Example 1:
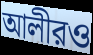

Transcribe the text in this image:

আলীরও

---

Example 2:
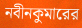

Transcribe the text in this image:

নবীনকুমারের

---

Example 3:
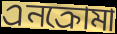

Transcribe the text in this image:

এনক্রোমা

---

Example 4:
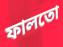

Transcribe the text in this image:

ফালতো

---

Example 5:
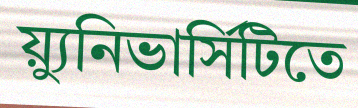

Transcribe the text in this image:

য়্যুনিভার্সিটিতে